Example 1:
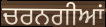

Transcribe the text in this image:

ਚਰਨਗੀਆਂ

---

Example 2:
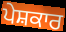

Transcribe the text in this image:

ਪੇਸ਼ਕਾਰ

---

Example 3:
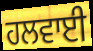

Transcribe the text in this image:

ਹਲਵਾਈ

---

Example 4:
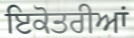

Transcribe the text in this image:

ਇਕੋਤਰੀਆਂ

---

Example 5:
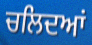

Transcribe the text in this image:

ਚਲਿਦਆਂ